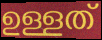
ഉള്ളത്